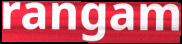
rangam